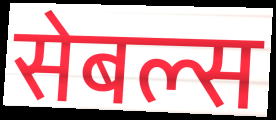
सेबल्स